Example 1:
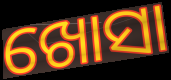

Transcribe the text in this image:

ଖୋସା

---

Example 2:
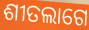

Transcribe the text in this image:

ଶୀତଲାଗେ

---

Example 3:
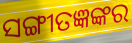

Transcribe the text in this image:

ସଙ୍ଗୀତଜ୍ଞଙ୍କର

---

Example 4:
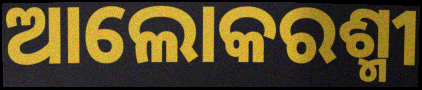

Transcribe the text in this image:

ଆଲୋକରଶ୍ମୀ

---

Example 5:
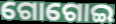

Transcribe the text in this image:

ଗୋଗୋଇ